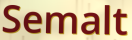
Semalt